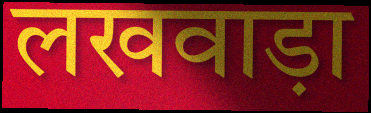
लखवाड़ा